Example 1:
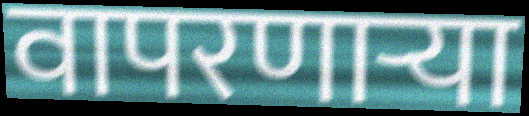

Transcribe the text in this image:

वापरणाऱ्या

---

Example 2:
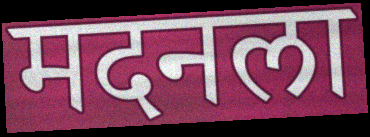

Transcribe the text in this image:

मदनला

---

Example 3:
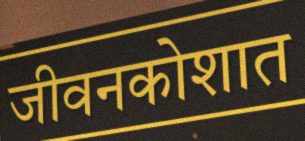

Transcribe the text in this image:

जीवनकोशात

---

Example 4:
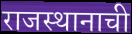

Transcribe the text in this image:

राजस्थानाची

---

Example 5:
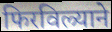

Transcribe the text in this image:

फिरविल्याने